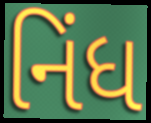
નિંધ